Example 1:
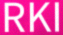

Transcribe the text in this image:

RKI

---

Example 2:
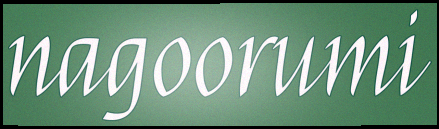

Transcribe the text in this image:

nagoorumi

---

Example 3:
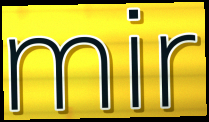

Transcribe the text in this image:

mir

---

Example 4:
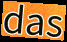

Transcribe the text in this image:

das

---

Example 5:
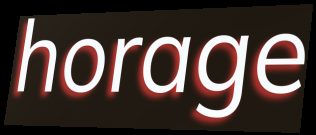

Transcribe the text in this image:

horage